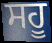
ਸਹੂ